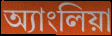
অ্যাংলিয়া